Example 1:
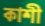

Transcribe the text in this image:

কাশী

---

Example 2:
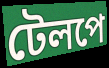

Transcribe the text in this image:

টেলপে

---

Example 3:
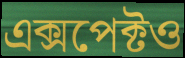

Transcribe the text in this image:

এক্সপেক্টও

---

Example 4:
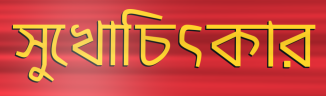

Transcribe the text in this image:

সুখোচিৎকার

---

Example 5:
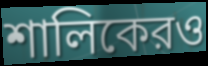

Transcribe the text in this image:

শালিকেরও